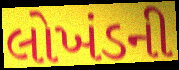
લોખંડની